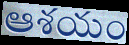
ఆశయం